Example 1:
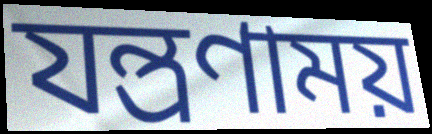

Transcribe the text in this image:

যন্ত্রণাময়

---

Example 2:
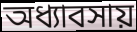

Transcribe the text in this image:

অধ্যাবসায়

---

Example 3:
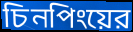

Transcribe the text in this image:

চিনপিংয়ের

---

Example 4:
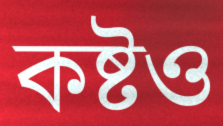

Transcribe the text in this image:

কষ্টও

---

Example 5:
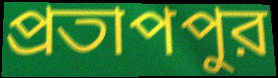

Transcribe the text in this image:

প্রতাপপুর